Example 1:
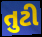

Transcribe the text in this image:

તુટી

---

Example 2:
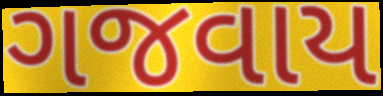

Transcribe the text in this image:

ગજવાય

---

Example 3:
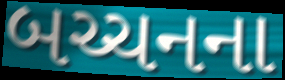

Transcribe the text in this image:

બચ્ચનના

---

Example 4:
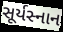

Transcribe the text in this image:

સૂર્યસ્નાન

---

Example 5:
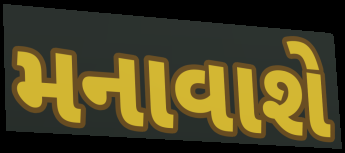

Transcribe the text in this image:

મનાવાશે